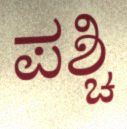
ಪಶ್ಚಿ